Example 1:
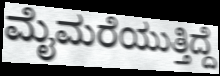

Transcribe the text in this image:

ಮೈಮರೆಯುತ್ತಿದ್ದೆ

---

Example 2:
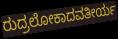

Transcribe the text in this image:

ರುದ್ರಲೋಕಾದವತೀರ್ಯ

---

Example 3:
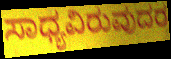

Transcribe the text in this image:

ಸಾಧ್ಯವಿರುವುದರ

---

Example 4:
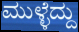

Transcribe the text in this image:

ಮುಳ್ಳೆದ್ದು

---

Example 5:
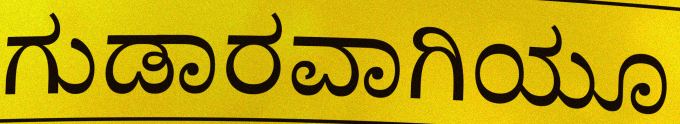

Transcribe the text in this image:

ಗುಡಾರವಾಗಿಯೂ